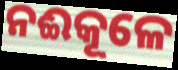
ନଈକୂଳେ